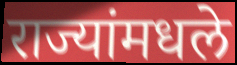
राज्यांमधले